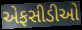
એફસીડીઓ